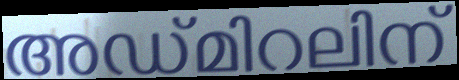
അഡ്മിറലിന്